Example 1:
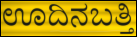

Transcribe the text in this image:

ಊದಿನಬತ್ತಿ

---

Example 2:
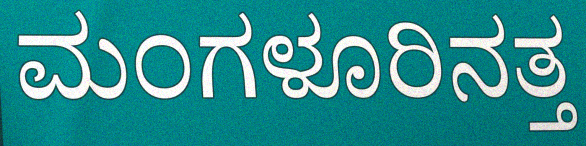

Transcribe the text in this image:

ಮಂಗಳೂರಿನತ್ತ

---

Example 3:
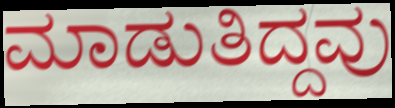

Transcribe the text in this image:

ಮಾಡುತಿದ್ದವು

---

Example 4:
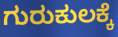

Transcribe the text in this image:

ಗುರುಕುಲಕ್ಕೆ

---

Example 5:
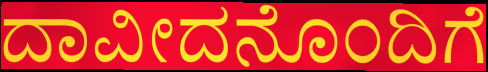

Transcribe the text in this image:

ದಾವೀದನೊಂದಿಗೆ